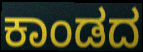
ಕಾಂಡದ